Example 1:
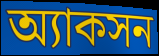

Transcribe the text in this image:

অ্যাকসন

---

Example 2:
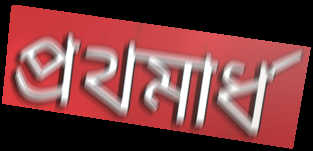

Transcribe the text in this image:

প্রথমার্ধ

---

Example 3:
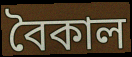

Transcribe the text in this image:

বৈকাল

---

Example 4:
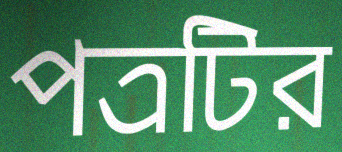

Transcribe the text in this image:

পত্রটির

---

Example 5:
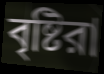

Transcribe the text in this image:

বৃষ্টিরা